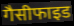
गैसीफाइड